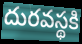
దురవస్థకి